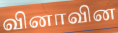
வினாவின